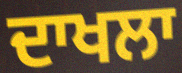
ਦਾਖਲਾ